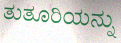
ತುತೂರಿಯನ್ನು